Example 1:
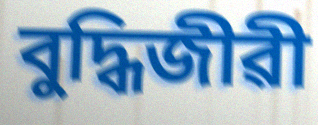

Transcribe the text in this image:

বুদ্ধিজীৱী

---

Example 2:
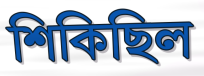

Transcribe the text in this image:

শিকিছিল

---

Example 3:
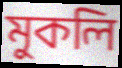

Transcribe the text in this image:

মুকলি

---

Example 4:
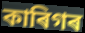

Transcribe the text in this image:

কাৰিগৰ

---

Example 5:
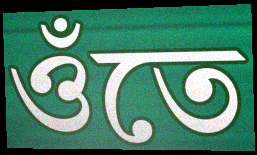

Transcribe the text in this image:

ওঁতে